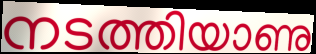
നടത്തിയാണു